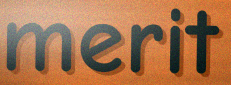
merit